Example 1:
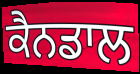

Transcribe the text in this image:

ਕੈਨਡਾਲ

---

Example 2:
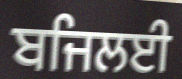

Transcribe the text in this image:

ਬਜਿਲਈ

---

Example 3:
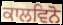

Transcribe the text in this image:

ਕਾਲਵਿਨੋ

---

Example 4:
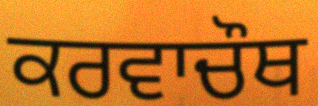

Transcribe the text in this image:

ਕਰਵਾਚੌਥ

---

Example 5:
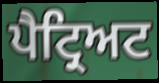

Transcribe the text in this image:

ਪੈਟ੍ਰਿਅਟ